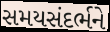
સમયસંદર્ભને